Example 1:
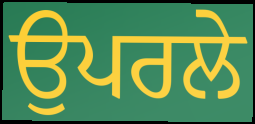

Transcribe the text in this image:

ਉਪਰਲੇ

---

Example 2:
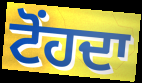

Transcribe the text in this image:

ਟੋਂਹਦਾ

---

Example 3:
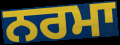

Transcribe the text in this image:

ਨਰਮਾ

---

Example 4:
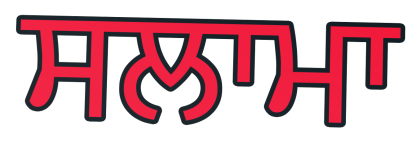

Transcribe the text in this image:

ਸਲਾਮਾ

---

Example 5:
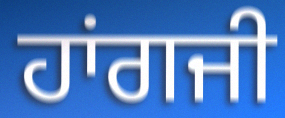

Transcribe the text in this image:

ਹਾਂਗਜੀ